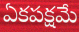
ఏకపక్షమే